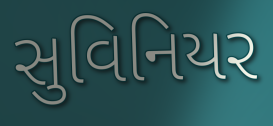
સુવિનિયર